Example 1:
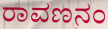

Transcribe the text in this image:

ರಾವಣನಂ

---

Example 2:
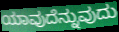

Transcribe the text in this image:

ಯಾವುದೆನ್ನುವುದು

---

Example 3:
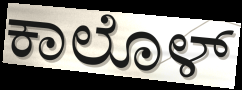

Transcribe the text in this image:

ಕಾಲೊಳ್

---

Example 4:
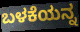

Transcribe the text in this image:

ಬಳಕೆಯನ್ನ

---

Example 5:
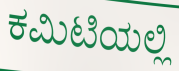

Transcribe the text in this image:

ಕಮಿಟಿಯಲ್ಲಿ